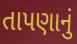
તાપણાનું